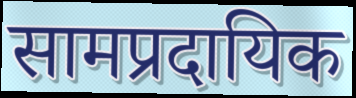
सामप्रदायिक